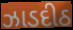
ઝાડદીઠ